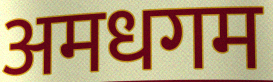
अमधगम